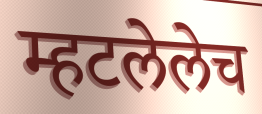
म्हटलेलेच